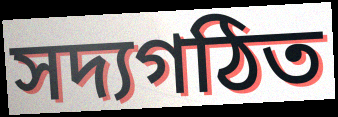
সদ্যগঠিত